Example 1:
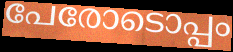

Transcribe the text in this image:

പേരോടൊപ്പം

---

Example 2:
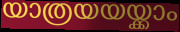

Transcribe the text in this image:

യാത്രയയയ്ക്കാം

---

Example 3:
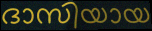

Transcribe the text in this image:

ദാസിയായ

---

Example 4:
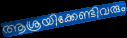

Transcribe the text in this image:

ആശ്രയിക്കേണ്ടിവരും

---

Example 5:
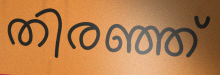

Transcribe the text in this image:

തിരഞ്ഞ്